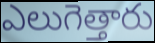
ఎలుగెత్తారు